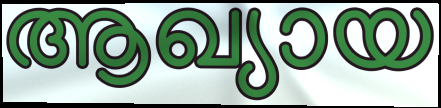
ആഖ്യായ